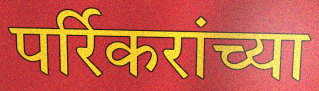
पर्रिकरांच्या